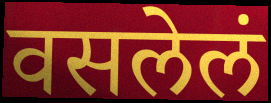
वसलेलं